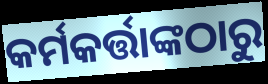
କର୍ମକର୍ତ୍ତାଙ୍କଠାରୁ